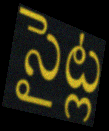
సైట్ల